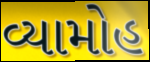
વ્યામોહ